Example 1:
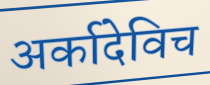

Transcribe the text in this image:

अर्कादेविच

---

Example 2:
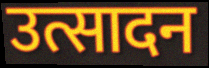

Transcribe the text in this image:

उत्सादन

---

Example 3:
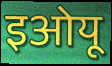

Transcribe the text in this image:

इओयू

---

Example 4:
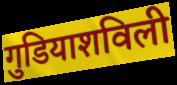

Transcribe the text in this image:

गुडियाशविली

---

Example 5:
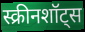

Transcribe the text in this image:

स्क्रीनशॉट्स